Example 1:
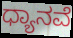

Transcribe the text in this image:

ಧ್ಯಾನವೆ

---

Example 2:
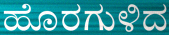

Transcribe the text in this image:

ಹೊರಗುಳಿದ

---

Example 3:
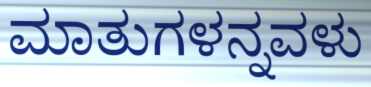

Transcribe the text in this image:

ಮಾತುಗಳನ್ನವಳು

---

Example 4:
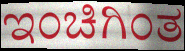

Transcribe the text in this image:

ಇಂಚಿಗಿಂತ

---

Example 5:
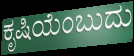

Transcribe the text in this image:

ಕೃಷಿಯೆಂಬುದು